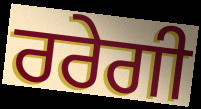
ਰਰੇਗੀ